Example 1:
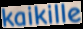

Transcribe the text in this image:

kaikille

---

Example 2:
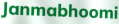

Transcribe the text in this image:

Janmabhoomi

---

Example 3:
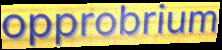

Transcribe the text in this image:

opprobrium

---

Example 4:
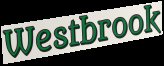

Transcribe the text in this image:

Westbrook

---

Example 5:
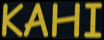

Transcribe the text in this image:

KAHI